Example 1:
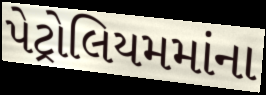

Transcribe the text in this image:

પેટ્રોલિયમમાંના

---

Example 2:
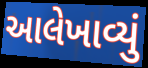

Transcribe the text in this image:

આલેખાવ્યું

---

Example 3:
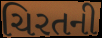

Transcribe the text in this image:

ચિરતની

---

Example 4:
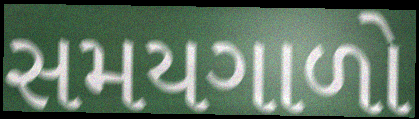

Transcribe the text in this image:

સમયગાળો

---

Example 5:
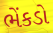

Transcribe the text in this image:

ભેંકડો